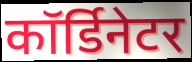
कॉर्डिनेटर